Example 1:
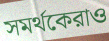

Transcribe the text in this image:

সমর্থকেরাও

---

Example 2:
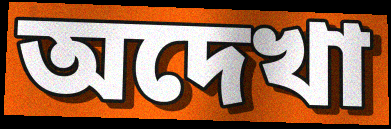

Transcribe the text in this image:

অদেখা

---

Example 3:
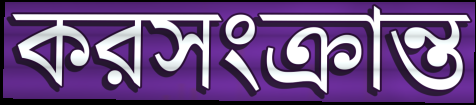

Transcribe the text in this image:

করসংক্রান্ত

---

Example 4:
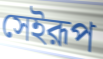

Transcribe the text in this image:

সেইরূপ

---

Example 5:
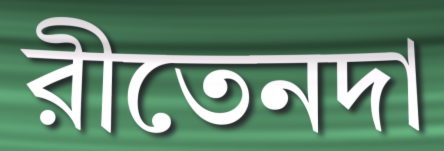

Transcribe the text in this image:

রীতেনদা